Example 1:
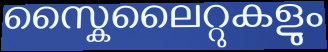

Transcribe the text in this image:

സ്കൈലൈറ്റുകളും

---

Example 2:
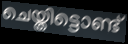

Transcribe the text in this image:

ചെയ്തിട്ടൊണ്ട്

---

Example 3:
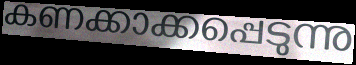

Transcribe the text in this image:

കണക്കാക്കപ്പെടുന്നു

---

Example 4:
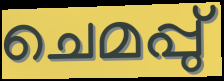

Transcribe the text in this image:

ചെമപ്പു്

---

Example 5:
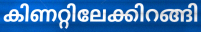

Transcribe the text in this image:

കിണറ്റിലേക്കിറങ്ങി